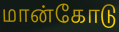
மான்கோடு